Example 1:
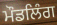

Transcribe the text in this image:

ਮੌਡਲਿੰਗ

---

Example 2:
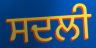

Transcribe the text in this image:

ਸਦਲੀ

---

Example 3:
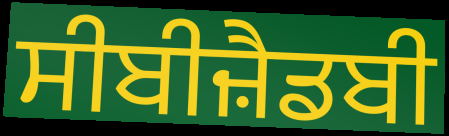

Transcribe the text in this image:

ਸੀਬੀਜ਼ੈਡਬੀ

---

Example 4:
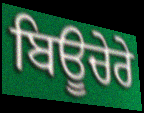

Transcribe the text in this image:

ਬਿਊਚੇਰੇ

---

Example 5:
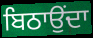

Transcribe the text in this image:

ਬਿਠਾਉਂਦਾ